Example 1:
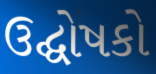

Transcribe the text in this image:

ઉદ્ઘોષકો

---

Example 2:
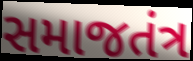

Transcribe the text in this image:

સમાજતંત્ર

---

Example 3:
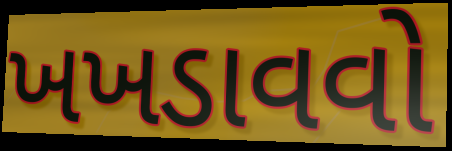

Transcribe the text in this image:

ખખડાવવો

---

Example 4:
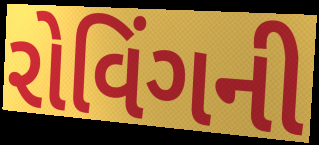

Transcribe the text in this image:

રોવિંગની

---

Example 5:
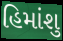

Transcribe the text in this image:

હિમાંશુ